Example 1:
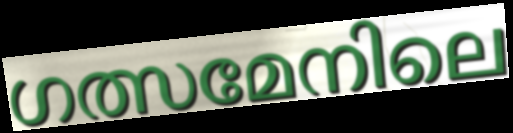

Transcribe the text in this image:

ഗത്സമേനിലെ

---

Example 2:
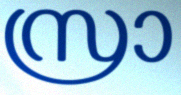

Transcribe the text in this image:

സ്രാ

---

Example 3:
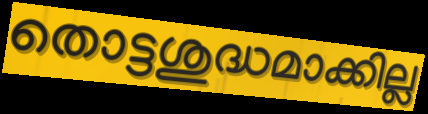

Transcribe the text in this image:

തൊട്ടശുദ്ധമാക്കില്ല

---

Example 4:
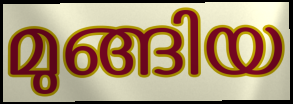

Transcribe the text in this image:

മുങ്ങിയ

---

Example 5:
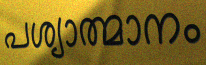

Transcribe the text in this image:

പശ്യാത്മാനം